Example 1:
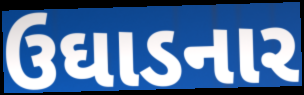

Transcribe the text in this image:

ઉઘાડનાર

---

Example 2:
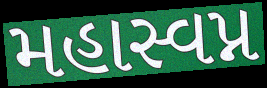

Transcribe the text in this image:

મહાસ્વપ્ન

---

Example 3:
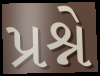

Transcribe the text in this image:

પ્રશ્ને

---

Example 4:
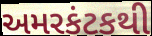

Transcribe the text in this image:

અમરકંટકથી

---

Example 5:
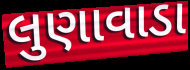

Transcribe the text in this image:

લુણાવાડા